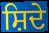
ਸ਼ਿਦੇ